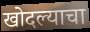
खोदल्याचा